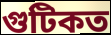
গুটিকত